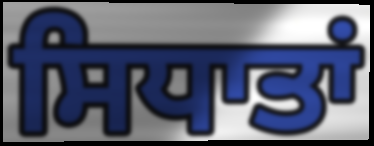
ਸਿਧਾਤਾਂ